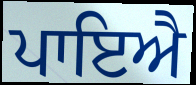
ਪਾਇਐ